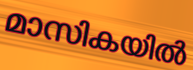
മാസികയിൽ